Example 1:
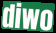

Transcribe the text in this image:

diwo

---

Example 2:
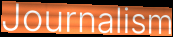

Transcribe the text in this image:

Journalism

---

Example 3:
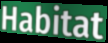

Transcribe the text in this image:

Habitat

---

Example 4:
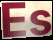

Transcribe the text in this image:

Es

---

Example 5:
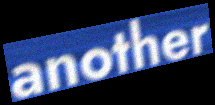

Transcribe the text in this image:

another